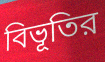
বিভূতির